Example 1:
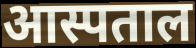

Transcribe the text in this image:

आस्पताल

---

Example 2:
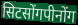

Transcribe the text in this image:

सिटसोंगपीनोंग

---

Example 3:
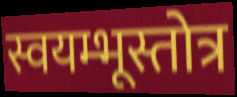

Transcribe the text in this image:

स्वयम्भूस्तोत्र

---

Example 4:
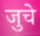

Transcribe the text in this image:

जुचे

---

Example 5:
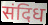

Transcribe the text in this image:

संदिध